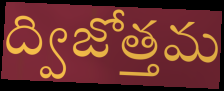
ద్విజోత్తమ